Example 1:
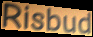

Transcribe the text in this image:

Risbud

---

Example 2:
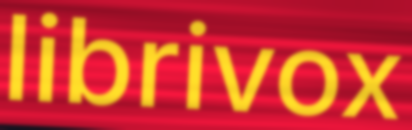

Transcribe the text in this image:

librivox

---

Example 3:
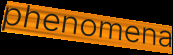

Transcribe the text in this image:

phenomena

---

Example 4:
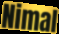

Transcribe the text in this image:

Nimal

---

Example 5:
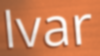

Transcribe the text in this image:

Ivar